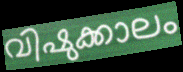
വിഷുക്കാലം